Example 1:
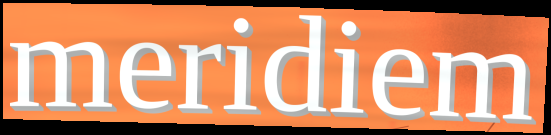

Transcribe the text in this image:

meridiem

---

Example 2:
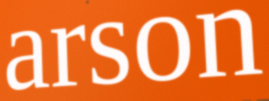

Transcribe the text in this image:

arson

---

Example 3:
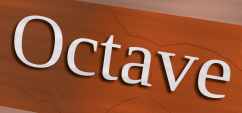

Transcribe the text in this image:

Octave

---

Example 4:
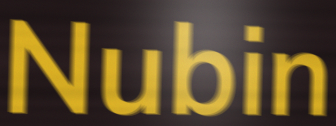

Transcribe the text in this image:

Nubin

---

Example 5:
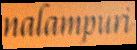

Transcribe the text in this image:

nalampuri